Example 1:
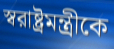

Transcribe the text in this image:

স্বরাষ্ট্রমন্ত্রীকে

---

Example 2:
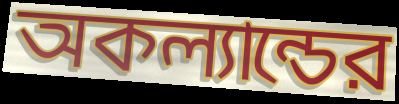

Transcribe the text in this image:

অকল্যান্ডের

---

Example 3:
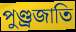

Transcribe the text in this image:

পুণ্ড্রজাতি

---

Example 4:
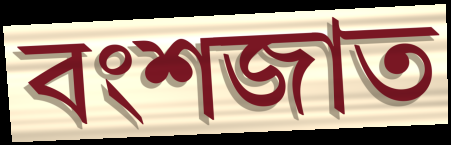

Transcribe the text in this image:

বংশজাত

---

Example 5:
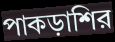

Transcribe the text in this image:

পাকড়াশির